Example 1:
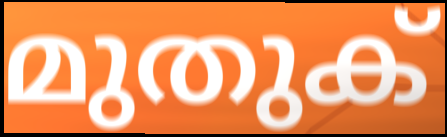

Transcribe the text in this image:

മുതുക്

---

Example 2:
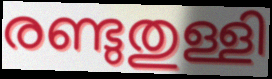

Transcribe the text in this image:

രണ്ടുതുള്ളി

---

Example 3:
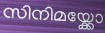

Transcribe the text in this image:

സിനിമയ്ക്കോ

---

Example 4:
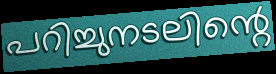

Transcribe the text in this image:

പറിച്ചുനടലിന്റെ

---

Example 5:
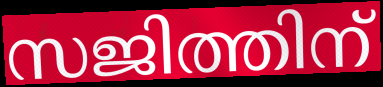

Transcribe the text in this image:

സജിത്തിന്